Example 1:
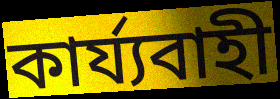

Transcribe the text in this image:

কাৰ্য্যবাহী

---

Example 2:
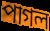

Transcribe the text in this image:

পাগল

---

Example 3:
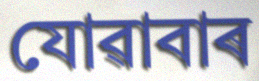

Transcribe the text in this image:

যোৱাবাৰ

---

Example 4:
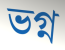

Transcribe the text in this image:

ভগ্ন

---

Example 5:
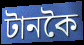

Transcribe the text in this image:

টানকৈ